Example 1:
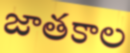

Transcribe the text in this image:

జాతకాల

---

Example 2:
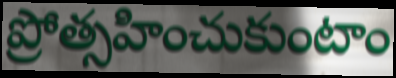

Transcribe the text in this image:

ప్రోత్సహించుకుంటాం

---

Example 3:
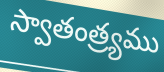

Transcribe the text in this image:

స్వాతంత్ర్యము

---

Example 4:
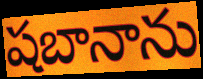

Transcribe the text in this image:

షబానాను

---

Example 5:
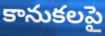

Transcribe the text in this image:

కానుకలపై